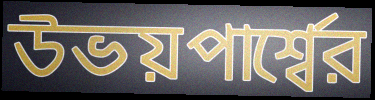
উভয়পার্শ্বের